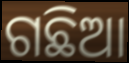
ଗଛିଆ